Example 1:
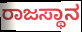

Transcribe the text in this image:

ರಾಜಸ್ಥಾನ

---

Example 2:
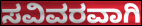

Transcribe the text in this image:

ಸವಿವರವಾಗಿ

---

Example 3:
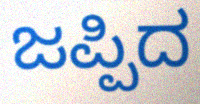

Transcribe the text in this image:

ಜಪ್ಪಿದ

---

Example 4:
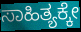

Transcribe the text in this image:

ಸಾಹಿತ್ಯಕ್ಕೇ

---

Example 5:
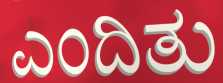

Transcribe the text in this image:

ಎಂದಿತು